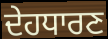
ਦੇਹਧਾਰਣ